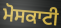
ਮੋਸਕਾਟੀ